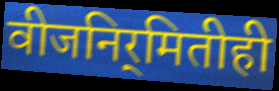
वीजनिर्मितीही